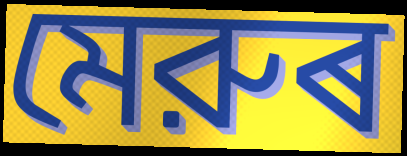
মেৰুৰ